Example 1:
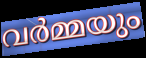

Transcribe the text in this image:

വർമ്മയും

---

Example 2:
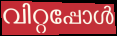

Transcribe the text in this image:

വിറ്റപ്പോൾ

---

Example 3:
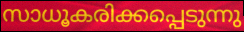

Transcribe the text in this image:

സാധൂകരിക്കപ്പെടുന്നു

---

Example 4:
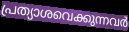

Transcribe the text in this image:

പ്രത്യാശവെക്കുന്നവർ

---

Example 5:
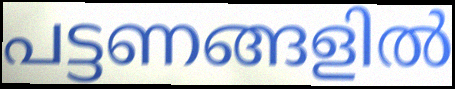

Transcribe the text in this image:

പട്ടണങ്ങളിൽ